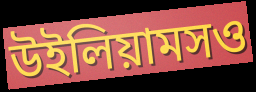
উইলিয়ামসও